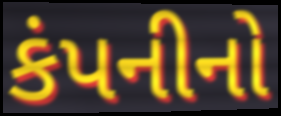
કંપનીનો